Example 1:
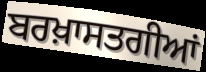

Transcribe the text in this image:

ਬਰਖ਼ਾਸਤਗੀਆਂ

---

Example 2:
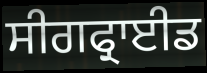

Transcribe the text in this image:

ਸੀਗਫ੍ਰਾਈਡ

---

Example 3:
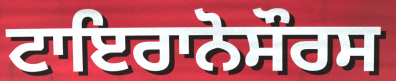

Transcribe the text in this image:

ਟਾਇਰਾਨੋਸੌਰਸ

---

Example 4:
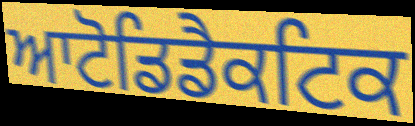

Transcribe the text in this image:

ਆਟੋਡਿਡੈਕਟਿਕ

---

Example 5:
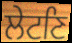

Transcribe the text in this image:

ਲੇਟਣਿ